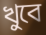
খুবে